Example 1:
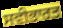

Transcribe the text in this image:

ਸਵੀਭਾਰਤ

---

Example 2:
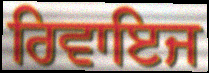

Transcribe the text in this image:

ਰਿਵਾਇਜ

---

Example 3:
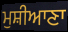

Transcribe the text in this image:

ਮੁਸ਼ੀਆਣਾ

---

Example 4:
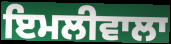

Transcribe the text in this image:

ਇਮਲੀਵਾਲਾ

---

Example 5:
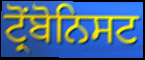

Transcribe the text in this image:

ਟ੍ਰੋਂਬੋਨਿਸਟ